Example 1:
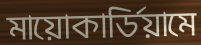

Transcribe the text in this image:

মায়োকার্ডিয়ামে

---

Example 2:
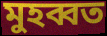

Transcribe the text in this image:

মুহব্বত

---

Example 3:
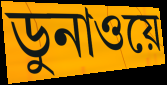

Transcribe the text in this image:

ডুনাওয়ে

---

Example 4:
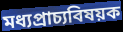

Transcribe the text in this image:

মধ্যপ্রাচ্যবিষয়ক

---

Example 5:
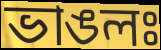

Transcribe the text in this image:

ভাঙলঃ